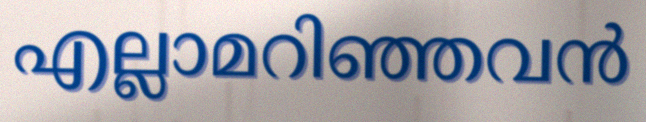
എല്ലാമറിഞ്ഞവൻ